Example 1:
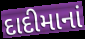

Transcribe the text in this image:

દાદીમાનાં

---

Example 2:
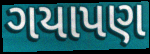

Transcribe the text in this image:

ગયાપણ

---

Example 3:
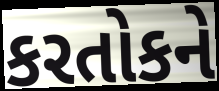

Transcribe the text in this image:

કરતોકને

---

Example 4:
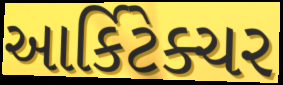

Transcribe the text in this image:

આર્કિટેક્ચર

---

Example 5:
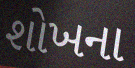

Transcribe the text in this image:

શોખના